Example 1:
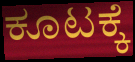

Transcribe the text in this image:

ಕೂಟಕ್ಕೆ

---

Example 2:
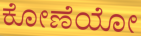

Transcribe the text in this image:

ಕೋಣೆಯೋ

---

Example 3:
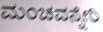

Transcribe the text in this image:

ಮಂಚವನ್ನೇರಿ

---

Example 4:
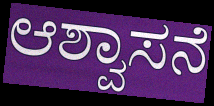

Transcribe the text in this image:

ಆಶ್ವಾಸನೆ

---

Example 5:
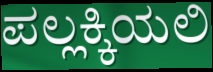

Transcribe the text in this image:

ಪಲ್ಲಕ್ಕಿಯಲಿ